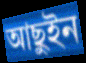
আছুইন